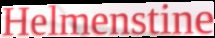
Helmenstine